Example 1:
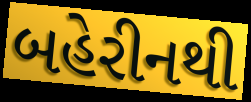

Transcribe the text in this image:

બહેરીનથી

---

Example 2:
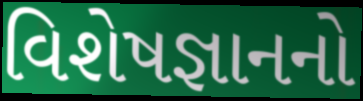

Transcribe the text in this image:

વિશેષજ્ઞાનનો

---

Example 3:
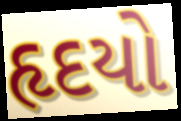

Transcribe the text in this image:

હૃદયો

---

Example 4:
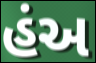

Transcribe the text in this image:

હંઅ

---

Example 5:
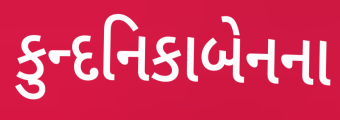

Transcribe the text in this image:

કુન્દનિકાબેનના